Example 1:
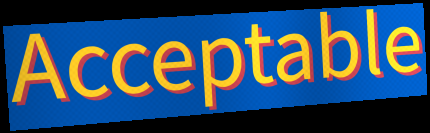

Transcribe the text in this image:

Acceptable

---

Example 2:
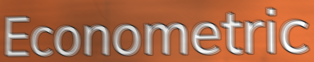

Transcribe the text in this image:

Econometric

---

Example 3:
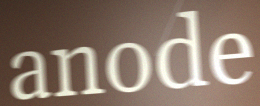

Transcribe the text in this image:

anode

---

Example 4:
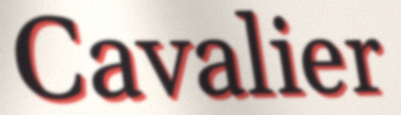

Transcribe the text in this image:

Cavalier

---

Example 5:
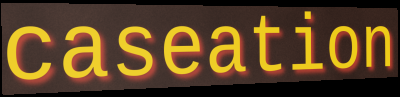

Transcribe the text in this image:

caseation